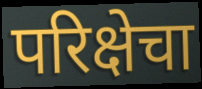
परिक्षेचा